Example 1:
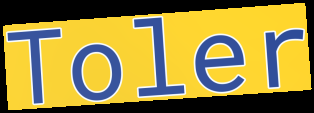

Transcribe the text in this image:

Toler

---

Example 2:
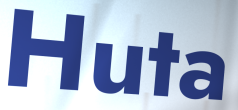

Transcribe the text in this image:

Huta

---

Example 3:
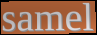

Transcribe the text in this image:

samel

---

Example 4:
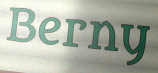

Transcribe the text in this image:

Berny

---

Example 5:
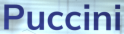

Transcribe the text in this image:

Puccini